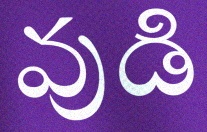
వుడి